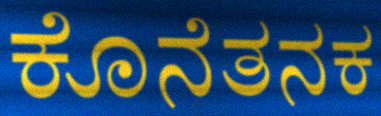
ಕೊನೆತನಕ